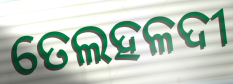
ତେଲହଳଦୀ